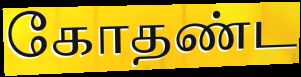
கோதண்ட